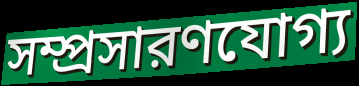
সম্প্রসারণযোগ্য